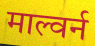
माल्वर्न